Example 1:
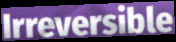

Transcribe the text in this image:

Irreversible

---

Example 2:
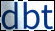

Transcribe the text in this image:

dbt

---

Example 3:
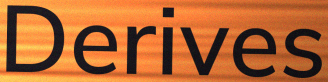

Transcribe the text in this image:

Derives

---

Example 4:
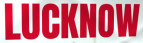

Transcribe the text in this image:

LUCKNOW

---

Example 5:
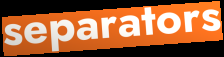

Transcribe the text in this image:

separators